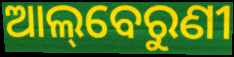
ଆଲ୍‌ବେରୁଣୀ